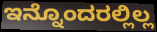
ಇನ್ನೊಂದರಲ್ಲಿಲ್ಲ